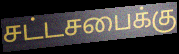
சட்டசபைக்கு